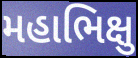
મહાભિક્ષુ